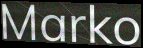
Marko